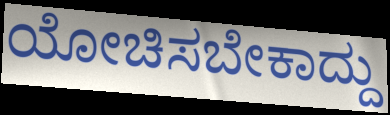
ಯೋಚಿಸಬೇಕಾದ್ದು